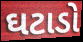
ઘટાડો